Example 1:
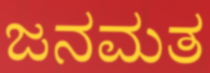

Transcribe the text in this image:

ಜನಮತ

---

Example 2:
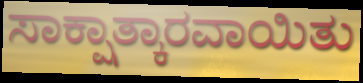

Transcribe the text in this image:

ಸಾಕ್ಷಾತ್ಕಾರವಾಯಿತು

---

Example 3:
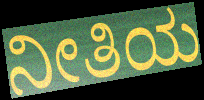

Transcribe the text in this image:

ನೀತಿಯ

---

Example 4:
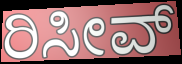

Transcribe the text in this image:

ರಿಸೀವ್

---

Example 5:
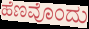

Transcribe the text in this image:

ಹೆಣವೊಂದು